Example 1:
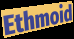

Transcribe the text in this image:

Ethmoid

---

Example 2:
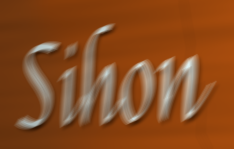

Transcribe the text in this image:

Sihon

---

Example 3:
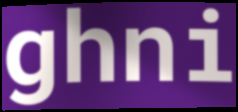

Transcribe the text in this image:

ghni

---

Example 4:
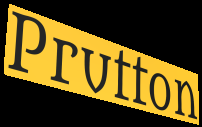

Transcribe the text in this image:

Prutton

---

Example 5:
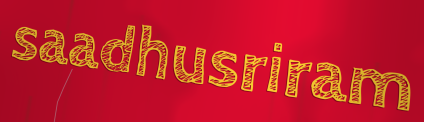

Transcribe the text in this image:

saadhusriram